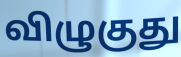
விழுகுது